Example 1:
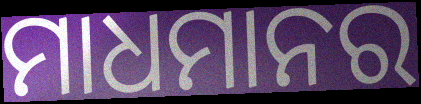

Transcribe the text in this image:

ମାଧମାନର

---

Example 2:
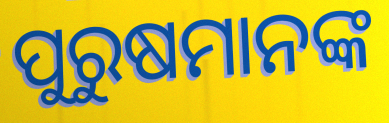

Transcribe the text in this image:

ପୁରୁଷମାନଙ୍କ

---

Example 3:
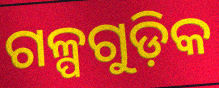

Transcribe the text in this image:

ଗଳ୍ପଗୁଡ଼ିକ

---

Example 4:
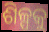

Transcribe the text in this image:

ଶିଳ୍ପକୁ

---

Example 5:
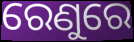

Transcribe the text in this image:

ରେଣୁରେ